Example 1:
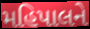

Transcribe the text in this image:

મહિપાલને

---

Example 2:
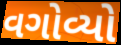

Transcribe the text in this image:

વગોવ્યો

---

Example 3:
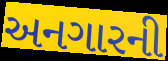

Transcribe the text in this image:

અનગારની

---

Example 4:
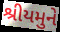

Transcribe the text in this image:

શ્રીયમુને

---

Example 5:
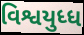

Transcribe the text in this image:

વિશ્વયુધ્ધ